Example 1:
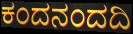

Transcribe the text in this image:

ಕಂದನಂದದಿ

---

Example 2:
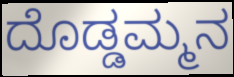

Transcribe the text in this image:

ದೊಡ್ಡಮ್ಮನ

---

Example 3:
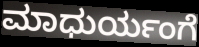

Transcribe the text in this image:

ಮಾಧುರ್ಯಂಗೆ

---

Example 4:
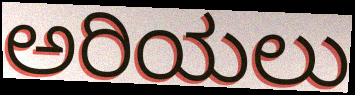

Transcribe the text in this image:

ಅರಿಯಲು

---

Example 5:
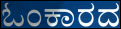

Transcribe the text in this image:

ಓಂಕಾರದ